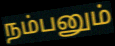
நம்பனும்